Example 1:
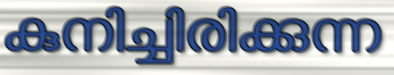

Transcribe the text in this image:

കുനിച്ചിരിക്കുന്ന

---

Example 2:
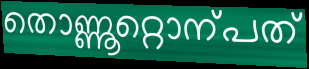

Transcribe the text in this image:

തൊണ്ണൂറ്റൊന്പത്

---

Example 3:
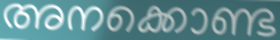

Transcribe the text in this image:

അനക്കൊണ്ട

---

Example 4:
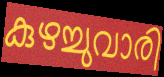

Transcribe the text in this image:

കുഴച്ചുവാരി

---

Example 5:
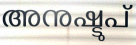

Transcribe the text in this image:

അനുഷ്ടുപ്